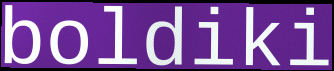
boldiki